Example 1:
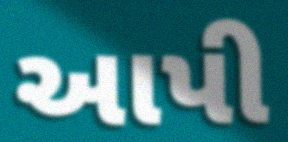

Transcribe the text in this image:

આપી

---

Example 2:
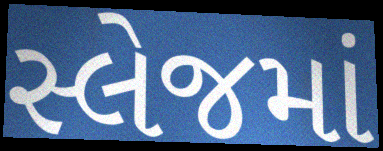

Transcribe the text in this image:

સ્લેજમાં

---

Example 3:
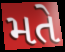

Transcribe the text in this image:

મતે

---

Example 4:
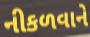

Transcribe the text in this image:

નીકળવાને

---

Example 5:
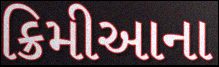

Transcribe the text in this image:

ક્રિમીઆના